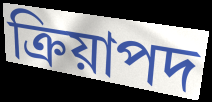
ক্রিয়াপদ